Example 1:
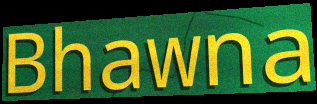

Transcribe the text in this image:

Bhawna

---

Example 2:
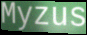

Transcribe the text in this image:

Myzus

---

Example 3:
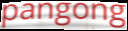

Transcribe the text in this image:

pangong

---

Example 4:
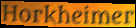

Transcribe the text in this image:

Horkheimer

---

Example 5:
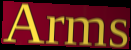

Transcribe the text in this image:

Arms